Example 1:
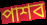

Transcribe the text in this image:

পাশব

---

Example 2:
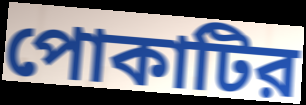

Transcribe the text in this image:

পোকাটির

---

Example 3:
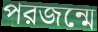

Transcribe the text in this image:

পরজন্মে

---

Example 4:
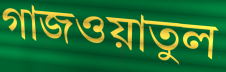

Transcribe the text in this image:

গাজওয়াতুল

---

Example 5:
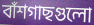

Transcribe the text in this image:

বাঁশগাছগুলো